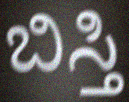
ಬಿಸ್ತಿ